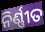
ନିର୍ଣ୍ଣୀତ